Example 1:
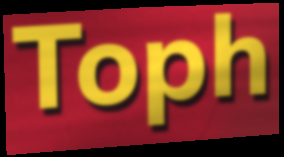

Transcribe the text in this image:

Toph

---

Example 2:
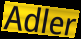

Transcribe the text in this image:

Adler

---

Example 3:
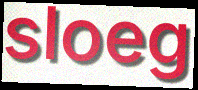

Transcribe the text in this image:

sloeg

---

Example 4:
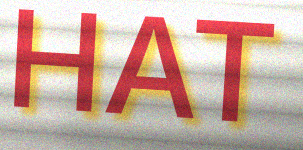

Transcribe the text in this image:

HAT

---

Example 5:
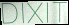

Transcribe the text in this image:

DIXIT